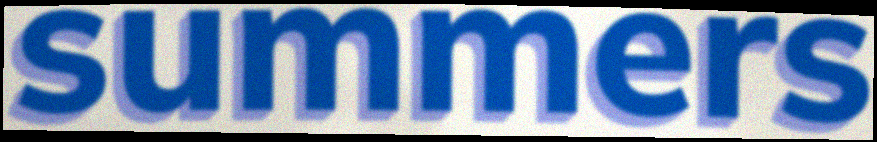
summers